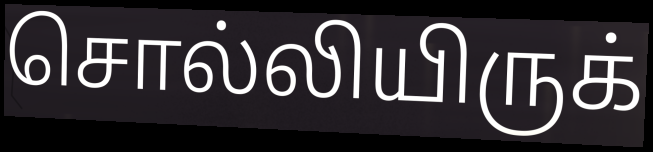
சொல்லியிருக்